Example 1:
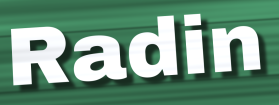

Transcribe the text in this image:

Radin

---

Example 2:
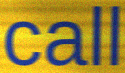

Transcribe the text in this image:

call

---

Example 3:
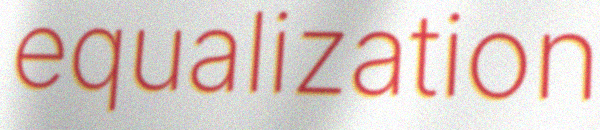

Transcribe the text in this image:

equalization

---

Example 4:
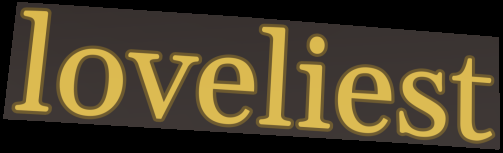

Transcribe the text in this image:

loveliest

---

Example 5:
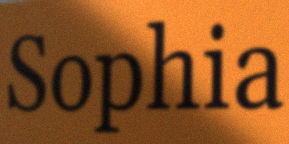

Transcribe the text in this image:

Sophia